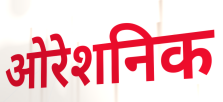
ओरेशनिक